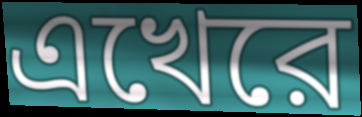
এখেরে